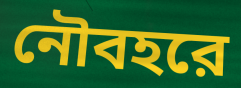
নৌবহরে